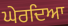
ਘੇਰਦਿਆ